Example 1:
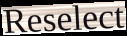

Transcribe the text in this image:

Reselect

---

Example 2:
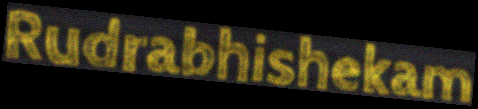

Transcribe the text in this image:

Rudrabhishekam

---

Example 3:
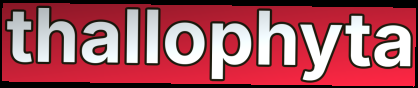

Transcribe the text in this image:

thallophyta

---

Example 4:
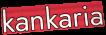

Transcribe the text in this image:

kankaria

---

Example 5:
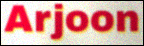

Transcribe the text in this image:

Arjoon